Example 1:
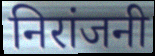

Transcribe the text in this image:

निरांजनी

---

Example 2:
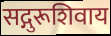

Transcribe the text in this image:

सद्गुरूशिवाय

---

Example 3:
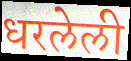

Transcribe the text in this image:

धरलेली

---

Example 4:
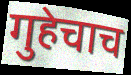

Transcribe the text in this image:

गुहेचाच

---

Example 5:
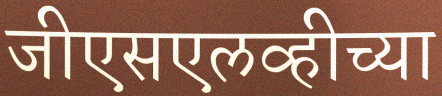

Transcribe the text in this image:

जीएसएलव्हीच्या